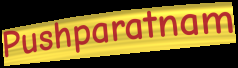
Pushparatnam